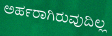
ಅರ್ಹರಾಗಿರುವುದಿಲ್ಲ